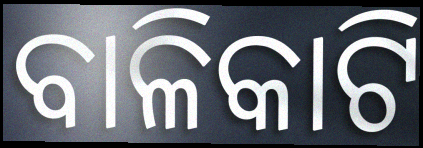
ବାଳିକାଟି